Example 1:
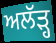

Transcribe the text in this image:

ਅਲੱੜ੍ਹ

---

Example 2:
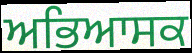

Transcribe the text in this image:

ਅਭਿਆਸਕ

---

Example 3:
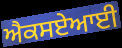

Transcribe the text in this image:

ਐਕਸਏਆਈ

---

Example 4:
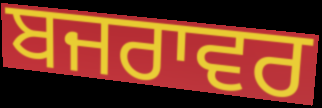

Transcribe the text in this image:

ਬਜਰਾਵਰ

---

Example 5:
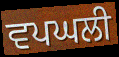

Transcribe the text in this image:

ਵਪਘਲੀ